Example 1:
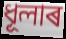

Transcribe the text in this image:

ধূলাৰ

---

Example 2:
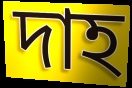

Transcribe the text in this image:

দাহ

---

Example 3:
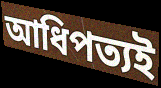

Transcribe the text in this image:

আধিপত্যই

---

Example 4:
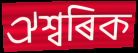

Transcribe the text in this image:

ঐশ্বৰিক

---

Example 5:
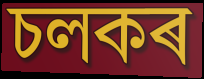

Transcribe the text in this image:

চলকৰ